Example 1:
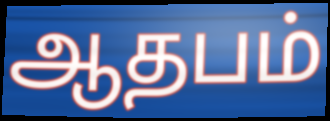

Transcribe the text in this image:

ஆதபம்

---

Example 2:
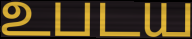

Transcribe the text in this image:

உபடய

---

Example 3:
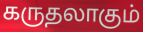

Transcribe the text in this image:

கருதலாகும்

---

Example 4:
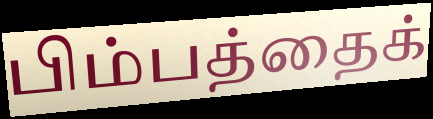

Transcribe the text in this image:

பிம்பத்தைக்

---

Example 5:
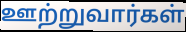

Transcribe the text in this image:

ஊற்றுவார்கள்